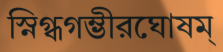
স্নিগ্ধগম্ভীরঘোষম্